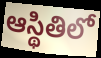
ఆస్థితిలో